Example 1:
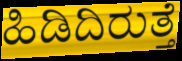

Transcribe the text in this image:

ಹಿಡಿದಿರುತ್ತೆ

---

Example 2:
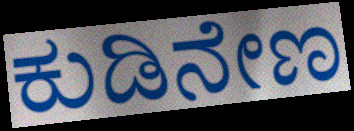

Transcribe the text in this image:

ಕುಡಿನೇಣ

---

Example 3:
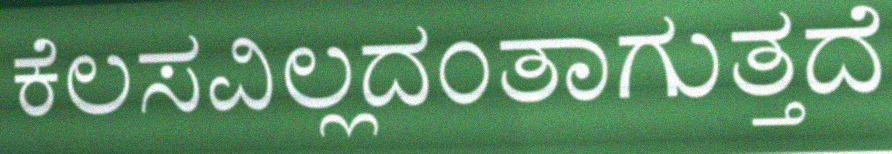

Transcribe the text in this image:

ಕೆಲಸವಿಲ್ಲದಂತಾಗುತ್ತದೆ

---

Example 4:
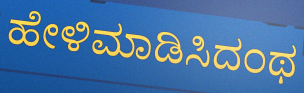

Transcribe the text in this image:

ಹೇಳಿಮಾಡಿಸಿದಂಥ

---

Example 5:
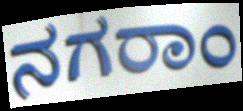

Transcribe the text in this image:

ನಗರಾಂ